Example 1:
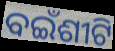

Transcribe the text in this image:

ବଇଁଶୀଟି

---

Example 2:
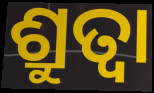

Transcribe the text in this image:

ଶ୍ରୁତ୍ଵା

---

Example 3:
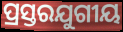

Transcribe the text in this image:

ପ୍ରସ୍ତରଯୁଗୀୟ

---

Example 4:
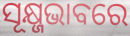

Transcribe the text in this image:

ସୂକ୍ଷ୍ଜଭାବରେ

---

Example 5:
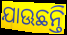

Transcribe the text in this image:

ଯାଊଛନ୍ତି